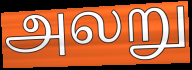
அலறு